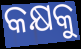
କକ୍ଷକୁ